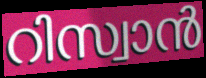
റിസ്വാൻ